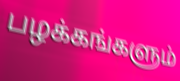
பழக்கங்களும்